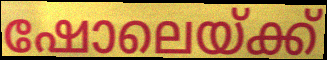
ഷോലെയ്ക്ക്